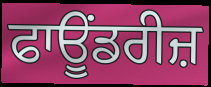
ਫਾਊਂਡਰੀਜ਼